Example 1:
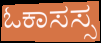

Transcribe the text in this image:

ಓಕಾಸಸ್ಸ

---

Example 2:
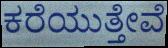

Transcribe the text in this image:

ಕರೆಯುತ್ತೇವೆ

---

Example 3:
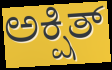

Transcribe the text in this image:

ಅಕ್ಷಿತ್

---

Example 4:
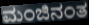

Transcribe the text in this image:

ಮಂಜಿನಂತ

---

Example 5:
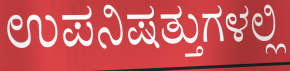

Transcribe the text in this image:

ಉಪನಿಷತ್ತುಗಳಲ್ಲಿ